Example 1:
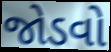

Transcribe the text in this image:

જોડવો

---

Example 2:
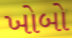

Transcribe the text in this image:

ખોબો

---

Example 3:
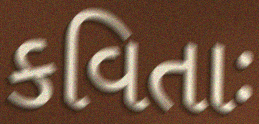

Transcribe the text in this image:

કવિતાઃ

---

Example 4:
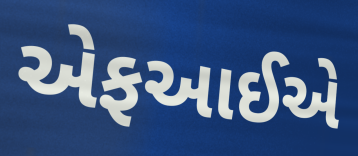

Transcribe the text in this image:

એફઆઈએ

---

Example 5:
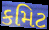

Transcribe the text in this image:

કમિટ